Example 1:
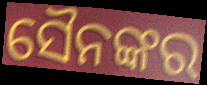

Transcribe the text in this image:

ସୈନଙ୍କର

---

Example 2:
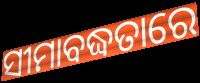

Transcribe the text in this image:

ସୀମାବଦ୍ଧତାରେ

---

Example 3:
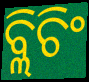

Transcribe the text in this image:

ବ୍ଲିଚିଂ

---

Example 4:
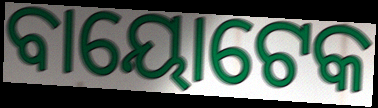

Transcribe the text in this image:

ବାୟୋଟେକ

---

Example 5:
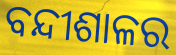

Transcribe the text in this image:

ବନ୍ଦୀଶାଳର